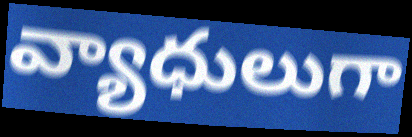
వ్యాధులుగా